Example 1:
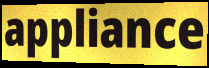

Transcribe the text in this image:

appliance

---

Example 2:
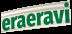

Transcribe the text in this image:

eraeravi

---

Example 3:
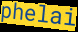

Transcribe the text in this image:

phelai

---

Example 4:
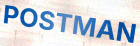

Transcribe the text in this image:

POSTMAN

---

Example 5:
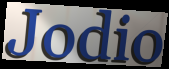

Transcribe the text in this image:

Jodio